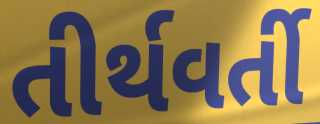
તીર્થવર્તી